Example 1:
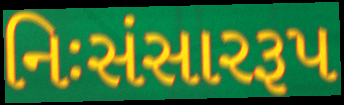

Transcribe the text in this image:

નિઃસંસારરૂપ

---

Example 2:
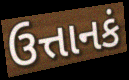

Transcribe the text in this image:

ઉત્તાનકં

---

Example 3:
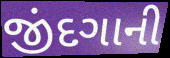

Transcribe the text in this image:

જીંદગાની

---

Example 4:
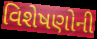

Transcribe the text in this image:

વિશેષણોની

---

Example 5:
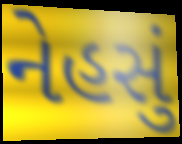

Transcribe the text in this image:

નેહસું